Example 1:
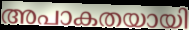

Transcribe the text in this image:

അപാകതയായി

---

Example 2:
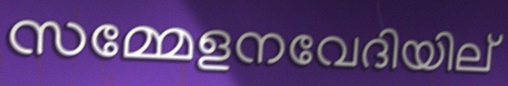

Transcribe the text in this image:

സമ്മേളനവേദിയില്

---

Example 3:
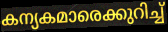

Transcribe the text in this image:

കന്യകമാരെക്കുറിച്ച്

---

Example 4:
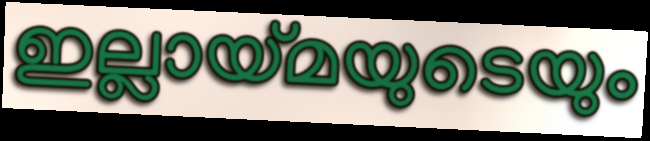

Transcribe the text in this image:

ഇല്ലായ്മയുടെയും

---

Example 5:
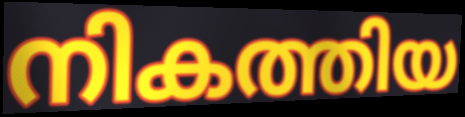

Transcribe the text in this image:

നികത്തിയ